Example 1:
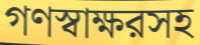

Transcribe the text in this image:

গণস্বাক্ষরসহ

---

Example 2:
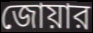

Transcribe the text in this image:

জোয়ার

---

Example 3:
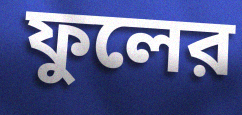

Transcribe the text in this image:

ফুলের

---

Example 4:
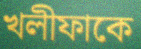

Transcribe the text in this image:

খলীফাকে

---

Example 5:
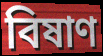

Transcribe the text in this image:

বিষাণ